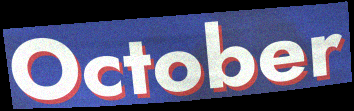
October